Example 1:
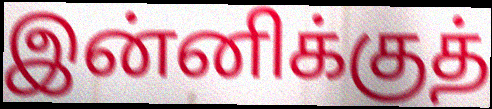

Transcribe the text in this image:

இன்னிக்குத்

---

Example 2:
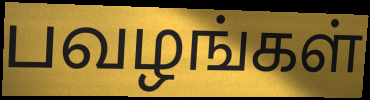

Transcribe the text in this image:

பவழங்கள்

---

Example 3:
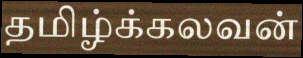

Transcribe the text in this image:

தமிழ்க்கலவன்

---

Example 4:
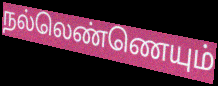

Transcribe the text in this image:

நல்லெண்ணெயும்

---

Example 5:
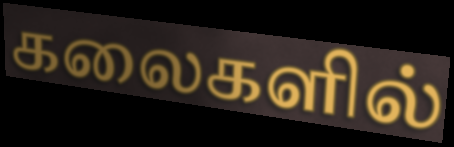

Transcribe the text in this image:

கலைகளில்